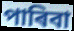
পাৰিবা